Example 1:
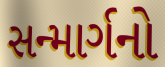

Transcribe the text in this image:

સન્માર્ગનો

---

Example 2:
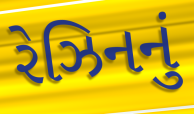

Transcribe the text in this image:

રેઝિનનું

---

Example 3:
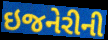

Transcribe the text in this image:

ઇજનેરીની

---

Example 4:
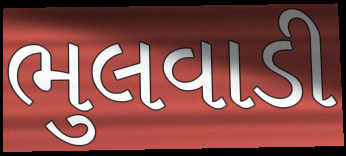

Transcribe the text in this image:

ભુલવાડી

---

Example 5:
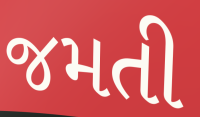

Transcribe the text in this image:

જમતી